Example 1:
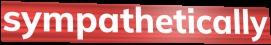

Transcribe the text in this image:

sympathetically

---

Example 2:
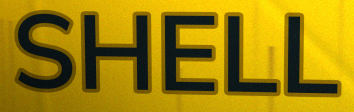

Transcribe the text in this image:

SHELL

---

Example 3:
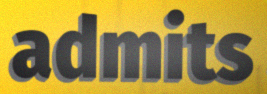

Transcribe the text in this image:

admits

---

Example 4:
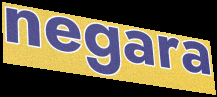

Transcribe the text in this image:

negara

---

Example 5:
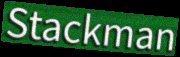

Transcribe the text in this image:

Stackman